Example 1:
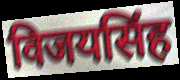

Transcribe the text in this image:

विजयसिंह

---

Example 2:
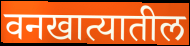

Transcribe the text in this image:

वनखात्यातील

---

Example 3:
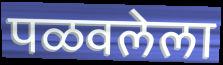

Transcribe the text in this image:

पळवलेला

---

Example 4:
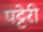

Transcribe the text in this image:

पट्टेरी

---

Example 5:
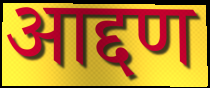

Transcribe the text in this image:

आद्दण